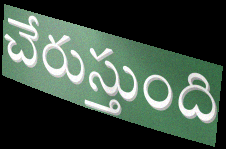
చేరుస్తుంది